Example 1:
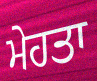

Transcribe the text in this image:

ਮੇਹਤਾ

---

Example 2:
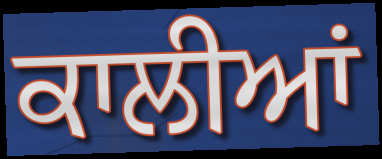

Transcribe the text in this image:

ਕਾਲੀਆਂ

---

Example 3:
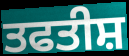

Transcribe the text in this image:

ਤਫਤੀਸ਼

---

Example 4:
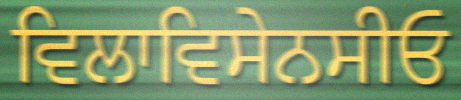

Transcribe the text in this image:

ਵਿਲਾਵਿਸੇਨਸੀਓ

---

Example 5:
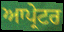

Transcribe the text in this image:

ਆਪ੍ਰੇਟਰ